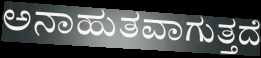
ಅನಾಹುತವಾಗುತ್ತದೆ